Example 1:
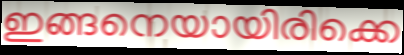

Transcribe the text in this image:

ഇങ്ങനെയായിരിക്കെ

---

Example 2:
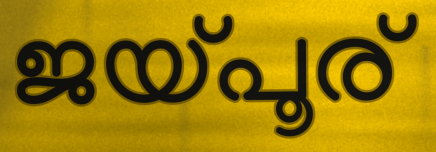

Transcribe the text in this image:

ജയ്പൂര്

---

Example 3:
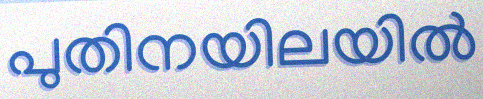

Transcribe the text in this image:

പുതിനയിലയിൽ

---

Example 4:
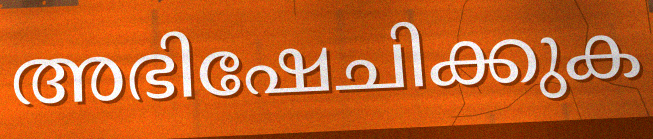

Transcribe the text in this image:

അഭിഷേചിക്കുക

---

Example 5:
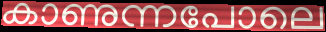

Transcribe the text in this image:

കാണുന്നപോലെ